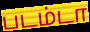
படம்டா